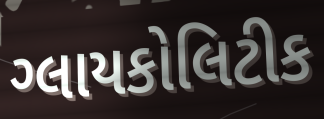
ગ્લાયકોલિટીક